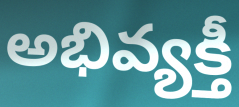
అభివ్యక్తీ